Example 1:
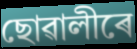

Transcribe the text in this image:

ছোৱালীৰে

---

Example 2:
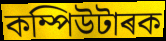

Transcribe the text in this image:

কম্পিউটাৰক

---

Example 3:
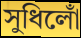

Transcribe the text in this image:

সুধিলোঁ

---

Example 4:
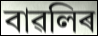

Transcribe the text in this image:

বাৱলিৰ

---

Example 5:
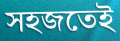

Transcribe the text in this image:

সহজতেই